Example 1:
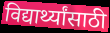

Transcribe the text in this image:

विद्यार्थ्यांसाठी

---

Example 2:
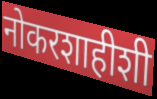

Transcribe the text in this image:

नोकरशाहीशी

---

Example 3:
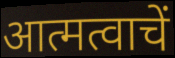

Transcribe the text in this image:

आत्मत्वाचें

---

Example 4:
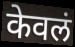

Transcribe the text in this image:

केवलं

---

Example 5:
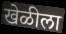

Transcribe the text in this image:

खेळीला